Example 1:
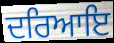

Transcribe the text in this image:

ਦਰਿਆਇ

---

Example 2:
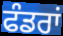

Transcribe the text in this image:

ਫੰਡਰਾਂ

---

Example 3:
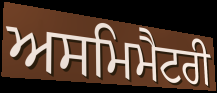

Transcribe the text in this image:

ਅਸਮਿਮੈਟਰੀ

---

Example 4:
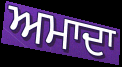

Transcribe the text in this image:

ਅਮਾਦਾ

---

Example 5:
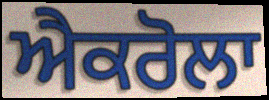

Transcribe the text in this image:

ਐਕਰੋਲਾ